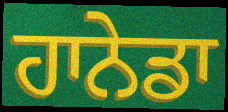
ਹਾਨੇਡਾ